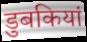
डुबकियां